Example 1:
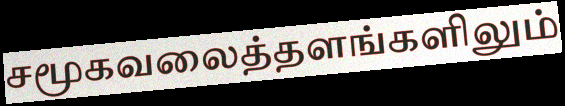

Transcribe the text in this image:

சமூகவலைத்தளங்களிலும்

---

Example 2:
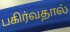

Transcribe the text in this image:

பகிர்வதால்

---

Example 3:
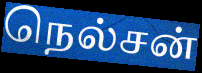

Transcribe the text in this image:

நெல்சன்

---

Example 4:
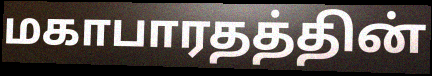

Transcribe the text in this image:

மகாபாரதத்தின்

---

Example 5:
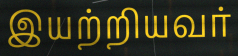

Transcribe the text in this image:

இயற்றியவர்